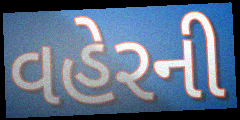
વહેરની